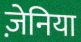
ज़ेनिया